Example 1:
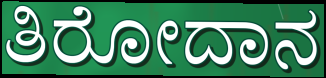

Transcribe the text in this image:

ತಿರೋದಾನ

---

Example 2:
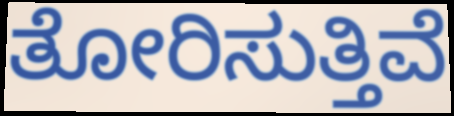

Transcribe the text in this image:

ತೋರಿಸುತ್ತಿವೆ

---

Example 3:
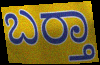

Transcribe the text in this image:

ಬರ‍್ತಾ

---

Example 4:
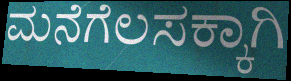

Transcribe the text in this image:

ಮನೆಗೆಲಸಕ್ಕಾಗಿ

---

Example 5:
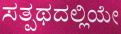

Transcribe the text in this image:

ಸತ್ಪಥದಲ್ಲಿಯೇ